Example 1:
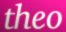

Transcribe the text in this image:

theo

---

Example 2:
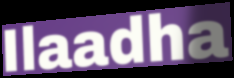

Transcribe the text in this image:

Ilaadha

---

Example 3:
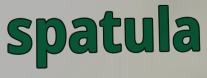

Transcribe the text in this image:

spatula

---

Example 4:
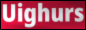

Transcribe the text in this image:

Uighurs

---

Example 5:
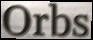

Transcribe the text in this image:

Orbs